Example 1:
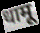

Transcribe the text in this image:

धामू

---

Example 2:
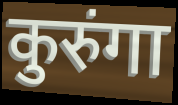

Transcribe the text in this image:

कुरुंगा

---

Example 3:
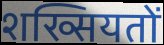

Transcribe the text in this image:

शख्सियतों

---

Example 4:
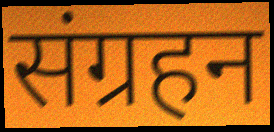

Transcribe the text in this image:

संग्रहन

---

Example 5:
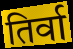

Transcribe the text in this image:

तिर्वा